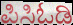
ಪಿಸಿಓಡಿ